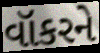
વૉકરને